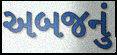
અબજનું